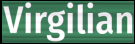
Virgilian